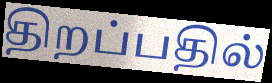
திறப்பதில்